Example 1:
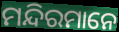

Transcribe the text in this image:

ମନ୍ଦିରମାନେ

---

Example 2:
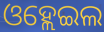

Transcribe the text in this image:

ଓହ୍ଲେଇଲ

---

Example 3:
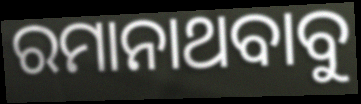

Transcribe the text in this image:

ରମାନାଥବାବୁ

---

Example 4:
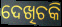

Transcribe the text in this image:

ଦେଖିଚକି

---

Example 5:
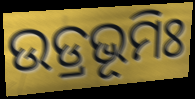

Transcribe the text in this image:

ଉଡ୍ରଭୂମିଃ